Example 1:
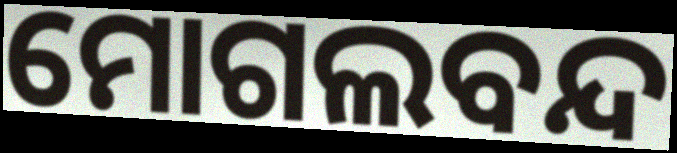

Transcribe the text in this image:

ମୋଗଲବନ୍ଦ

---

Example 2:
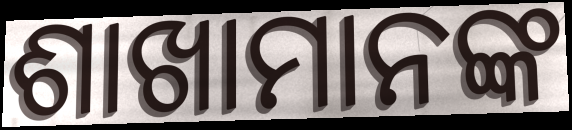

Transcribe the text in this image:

ଶାଖାମାନଙ୍କ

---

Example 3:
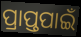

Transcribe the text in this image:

ପ୍ରାପ୍ତପାଇଁ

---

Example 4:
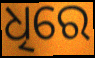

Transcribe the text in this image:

ଧିରେ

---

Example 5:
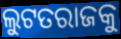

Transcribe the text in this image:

ଲୁଟତରାଜକୁ